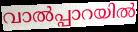
വാൽപ്പാറയിൽ